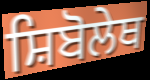
ਸ਼ਿਬੋਲੇਥ